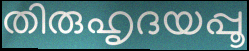
തിരുഹൃദയപ്പൂ